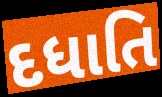
દધાતિ